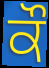
ਕੌ